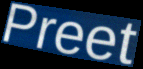
Preet